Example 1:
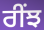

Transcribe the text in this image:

ਰੀਂਝ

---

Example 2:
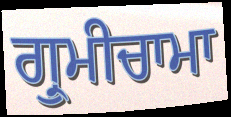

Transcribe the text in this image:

ਗ੍ਰੁਮੀਚਾਮਾ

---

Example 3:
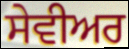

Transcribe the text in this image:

ਸੇਵੀਅਰ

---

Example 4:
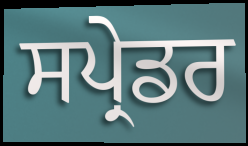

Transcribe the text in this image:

ਸਪ੍ਰੇਡਰ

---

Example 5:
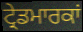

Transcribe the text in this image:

ਟ੍ਰੇਡਮਾਰਕਾਂ